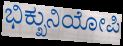
ಭಿಕ್ಖುನಿಯೋಪಿ